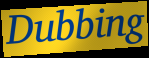
Dubbing